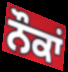
ਨੌਕਾਂ